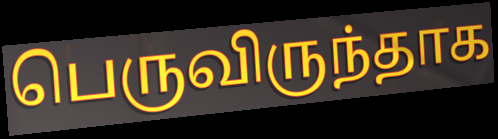
பெருவிருந்தாக